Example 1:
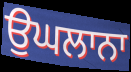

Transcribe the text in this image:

ਉਘਲਾਨਾ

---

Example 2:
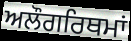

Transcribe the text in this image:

ਅਲੌਗਰਿਥਮਾਂ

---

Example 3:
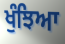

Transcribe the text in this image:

ਖੁੰਝਿਆ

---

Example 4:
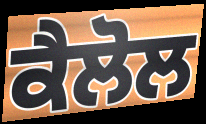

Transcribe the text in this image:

ਕੈਲੋਲ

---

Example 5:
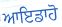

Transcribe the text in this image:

ਆਇਡਾਹੋ